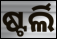
ଷ୍ଟର୍ଲି